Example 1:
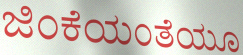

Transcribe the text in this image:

ಜಿಂಕೆಯಂತೆಯೂ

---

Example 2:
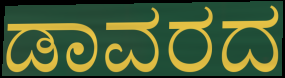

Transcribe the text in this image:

ಡಾವರದ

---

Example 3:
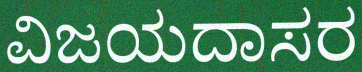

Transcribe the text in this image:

ವಿಜಯದಾಸರ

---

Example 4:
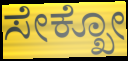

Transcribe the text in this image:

ಸೇಕ್ಖೋ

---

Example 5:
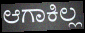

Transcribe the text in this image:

ಆಗಾಕಿಲ್ಲ